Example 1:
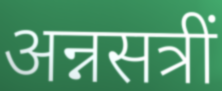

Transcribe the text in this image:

अन्नसत्रीं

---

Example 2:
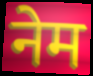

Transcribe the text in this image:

नेम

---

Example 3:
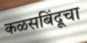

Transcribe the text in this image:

कळसबिंदूचा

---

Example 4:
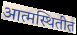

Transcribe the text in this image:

आत्मस्थितीत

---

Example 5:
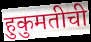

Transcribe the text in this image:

हुकुमतीची